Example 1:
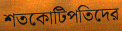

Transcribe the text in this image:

শতকোটিপতিদের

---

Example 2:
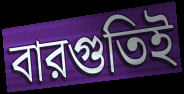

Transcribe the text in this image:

বারগুতিই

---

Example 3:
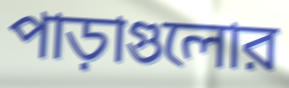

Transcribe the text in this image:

পাড়াগুলোর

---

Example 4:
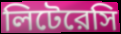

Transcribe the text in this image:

লিটেরেসি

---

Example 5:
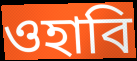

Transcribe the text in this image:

ওহাবি